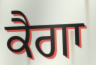
ਕੈਗਾ